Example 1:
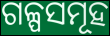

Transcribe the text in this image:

ଗଳ୍ପସମୂହ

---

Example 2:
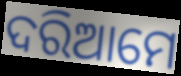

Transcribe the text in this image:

ଦରିଆମେ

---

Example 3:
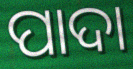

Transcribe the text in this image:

ପାଦା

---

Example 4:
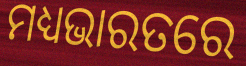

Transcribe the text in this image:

ମଧ୍ୟଭାରତରେ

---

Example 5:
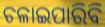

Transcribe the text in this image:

ଚଳାଇପାରିବି